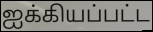
ஐக்கியப்பட்ட